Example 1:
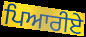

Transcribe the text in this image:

ਪਿਆਰੀਏ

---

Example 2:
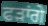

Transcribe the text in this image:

ਫੜਾਂਗੇ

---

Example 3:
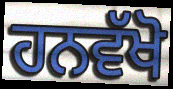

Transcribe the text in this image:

ਹਨਵੱਖੋ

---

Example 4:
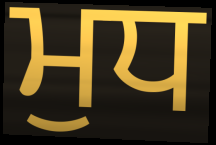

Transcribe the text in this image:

ਮੁਧ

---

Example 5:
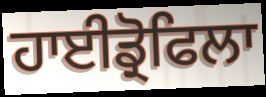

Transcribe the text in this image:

ਹਾਈਡ੍ਰੋਫਿਲਾ